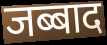
जब्बाद